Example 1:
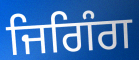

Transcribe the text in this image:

ਜਿਗਿੰਗ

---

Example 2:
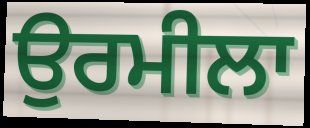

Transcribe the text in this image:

ਉਰਮੀਲਾ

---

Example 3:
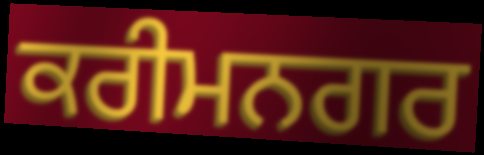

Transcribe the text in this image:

ਕਰੀਮਨਗਰ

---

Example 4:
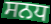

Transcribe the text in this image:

ਸਨਧ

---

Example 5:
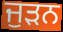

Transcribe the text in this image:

ਜੁਡ਼ਨ